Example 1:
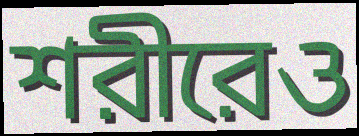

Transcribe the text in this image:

শরীরেও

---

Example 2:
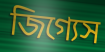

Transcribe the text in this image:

জিগ্যেস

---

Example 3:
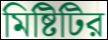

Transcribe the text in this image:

মিষ্টিটির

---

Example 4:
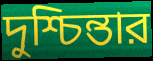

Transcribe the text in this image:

দুশ্চিন্তার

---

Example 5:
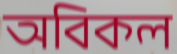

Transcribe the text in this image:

অবিকল